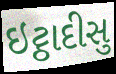
ઇટ્ઠાદીસુ